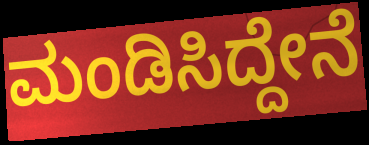
ಮಂಡಿಸಿದ್ದೇನೆ